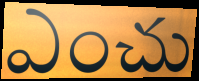
ఎంచు